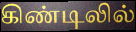
கிண்டிலில்